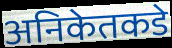
अनिकेतकडे